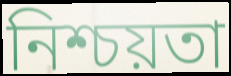
নিশ্চয়তা